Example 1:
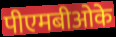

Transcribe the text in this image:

पीएमबीओके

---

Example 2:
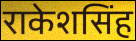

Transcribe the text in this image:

राकेशसिंह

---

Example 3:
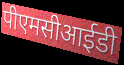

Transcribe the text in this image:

पीएमसीआईडी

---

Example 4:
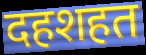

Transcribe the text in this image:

दहशहत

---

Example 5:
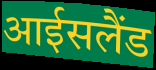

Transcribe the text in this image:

आईसलैंड